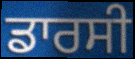
ਡਾਰਸੀ